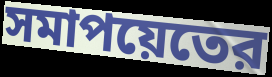
সমাপয়েতের